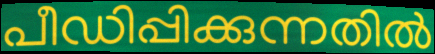
പീഡിപ്പിക്കുന്നതിൽ